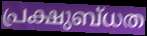
പ്രക്ഷുബ്ധത